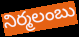
నిర్మలంబు